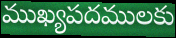
ముఖ్యపదములకు